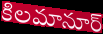
కిలమానూర్